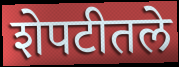
शेपटीतले